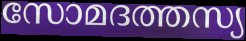
സോമദത്തസ്യ